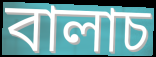
বালাচ